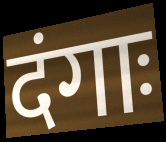
दंगाः